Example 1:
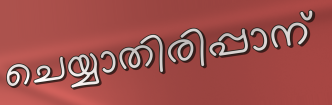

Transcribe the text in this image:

ചെയ്യാതിരിപ്പാന്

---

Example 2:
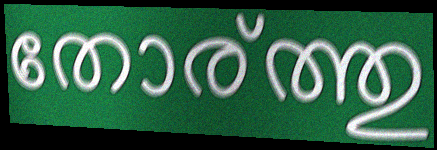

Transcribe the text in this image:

തോര്ത്തു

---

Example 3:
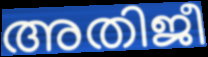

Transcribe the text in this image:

അതിജീ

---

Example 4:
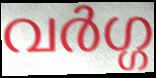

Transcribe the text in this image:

വർഗ്ഗ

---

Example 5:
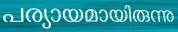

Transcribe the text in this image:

പര്യായമായിരുന്നു